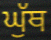
ਘੁੱਥ